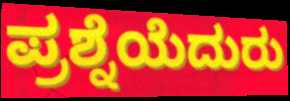
ಪ್ರಶ್ನೆಯೆದುರು